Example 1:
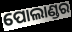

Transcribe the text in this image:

ପୋଲାଣ୍ଡର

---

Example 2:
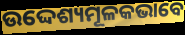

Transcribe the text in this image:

ଉଦ୍ଦେଶ୍ୟମୂଳକଭାବେ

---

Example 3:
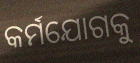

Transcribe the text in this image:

କର୍ମଯୋଗକୁ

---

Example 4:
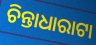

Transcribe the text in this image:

ଚିନ୍ତାଧାରାଟା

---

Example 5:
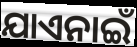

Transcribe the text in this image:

ଯାଏନାଇଁ